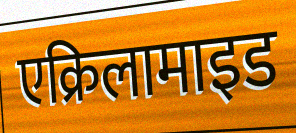
एक्रिलामाइड